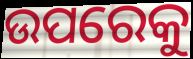
ଉପରେକୁ